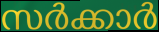
സർക്കാർ